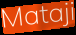
Mataji